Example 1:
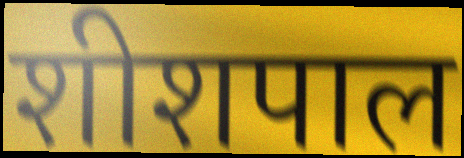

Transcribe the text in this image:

शीशपाल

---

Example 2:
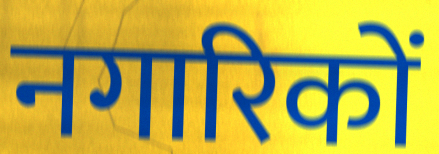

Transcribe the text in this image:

नगारिकों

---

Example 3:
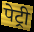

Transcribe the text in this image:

पेट्री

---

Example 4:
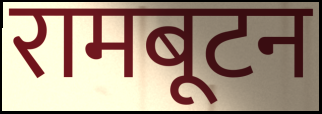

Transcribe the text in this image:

रामबूटन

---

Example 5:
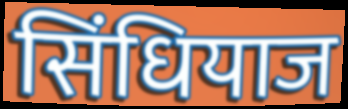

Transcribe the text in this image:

सिंधियाज